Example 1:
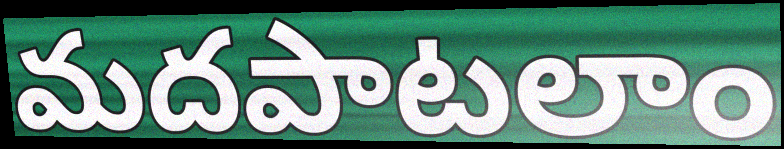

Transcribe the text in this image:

మదపాటలాం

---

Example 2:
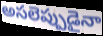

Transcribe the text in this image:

అసలెప్పుడైనా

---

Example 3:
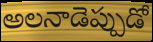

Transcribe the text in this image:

అలనాడెప్పుడో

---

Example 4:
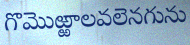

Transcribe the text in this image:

గొమొఱ్ఱాలవలెనగును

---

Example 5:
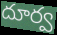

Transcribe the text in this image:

దూర్వ